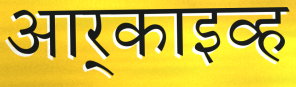
आर्काइव्ह